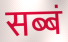
सब्बं